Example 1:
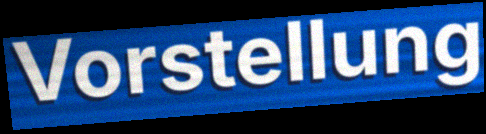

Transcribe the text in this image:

Vorstellung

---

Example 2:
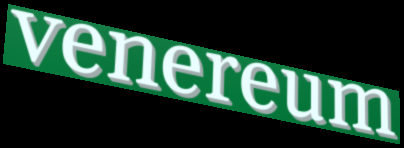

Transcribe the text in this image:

venereum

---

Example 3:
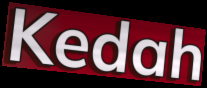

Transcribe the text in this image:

Kedah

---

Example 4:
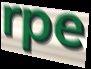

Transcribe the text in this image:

rpe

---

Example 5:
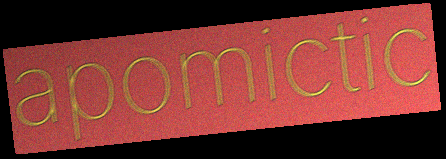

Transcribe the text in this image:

apomictic